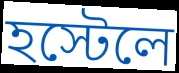
হস্টেলে